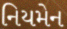
નિયમેન